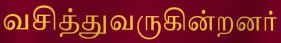
வசித்துவருகின்றனர்